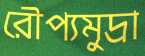
রৌপ্যমুদ্রা